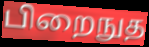
பிறைநுத